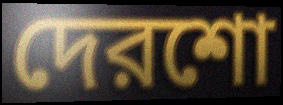
দেরশো